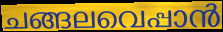
ചങ്ങലവെപ്പാൻ